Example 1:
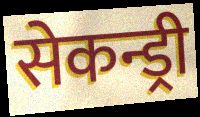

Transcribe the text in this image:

सेकन्ड्री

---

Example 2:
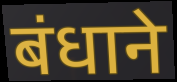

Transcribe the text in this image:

बंधाने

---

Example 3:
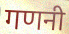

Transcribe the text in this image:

गणनी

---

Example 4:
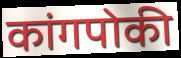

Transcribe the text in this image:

कांगपोकी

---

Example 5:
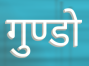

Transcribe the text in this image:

गुण्डो